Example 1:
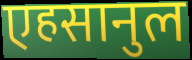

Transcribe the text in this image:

एहसानुल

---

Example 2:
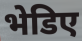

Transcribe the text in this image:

भेडिए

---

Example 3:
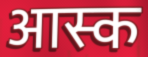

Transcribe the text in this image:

आस्क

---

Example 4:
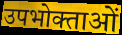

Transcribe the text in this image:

उपभोक्‍ताओं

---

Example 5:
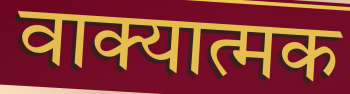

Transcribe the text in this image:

वाक्यात्मक